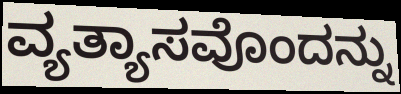
ವ್ಯತ್ಯಾಸವೊಂದನ್ನು